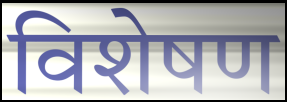
विशेषण